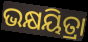
ଭକ୍ଷୟିତ୍ରା